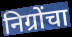
निग्रोंचा